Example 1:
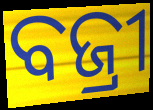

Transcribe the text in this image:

ବଜ୍ରୀ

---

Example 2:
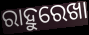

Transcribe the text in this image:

ରାହୁରେଖା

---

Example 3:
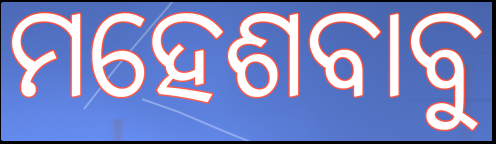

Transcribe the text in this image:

ମହେଶବାବୁ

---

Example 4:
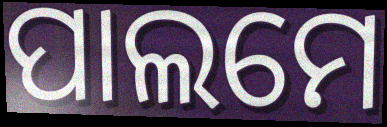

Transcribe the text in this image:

ପାଲମେ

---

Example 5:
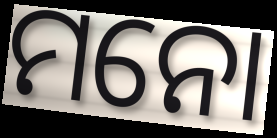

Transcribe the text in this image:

ମନୋ